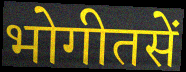
भोगीतसें